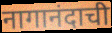
नागानंदाची